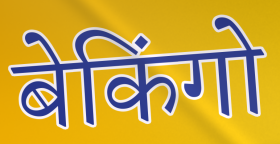
बेकिंगो